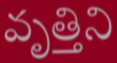
వృత్తిని